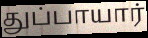
துப்பாயார்